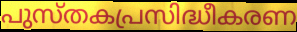
പുസ്തകപ്രസിദ്ധീകരണ